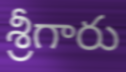
శ్రీగారు